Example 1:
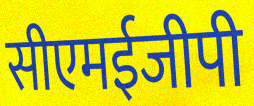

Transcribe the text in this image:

सीएमईजीपी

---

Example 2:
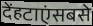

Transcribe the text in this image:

देंहटाएंसबसे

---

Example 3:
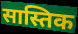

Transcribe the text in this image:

सास्तिक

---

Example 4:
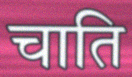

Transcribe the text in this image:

चाति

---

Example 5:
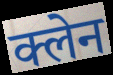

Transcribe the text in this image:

क्लेन